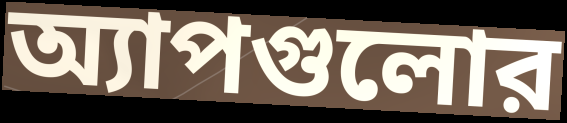
অ্যাপগুলোর